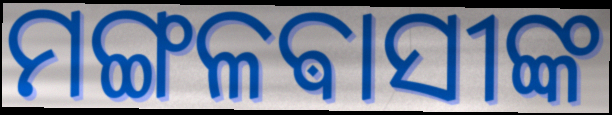
ମଙ୍ଗଳଵାସୀଙ୍କ